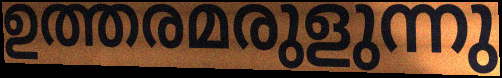
ഉത്തരമരുളുന്നു